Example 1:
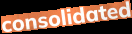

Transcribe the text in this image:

consolidated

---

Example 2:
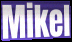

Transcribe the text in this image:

Mikel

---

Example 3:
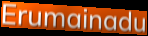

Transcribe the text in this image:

Erumainadu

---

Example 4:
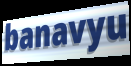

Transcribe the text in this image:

banavyu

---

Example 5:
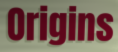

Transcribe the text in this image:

Origins